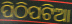
ପିଠିପଟିଆ